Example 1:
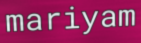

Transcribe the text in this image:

mariyam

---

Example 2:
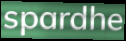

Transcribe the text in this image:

spardhe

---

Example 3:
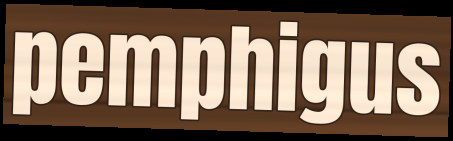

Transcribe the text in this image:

pemphigus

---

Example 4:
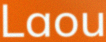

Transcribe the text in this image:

Laou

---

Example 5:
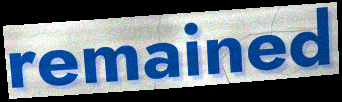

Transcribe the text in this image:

remained